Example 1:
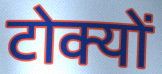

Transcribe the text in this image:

टोक्यों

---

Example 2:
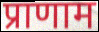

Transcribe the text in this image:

प्राणाम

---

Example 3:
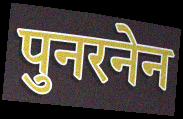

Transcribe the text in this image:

पुनरनेन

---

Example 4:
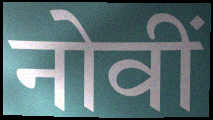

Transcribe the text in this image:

नोवीं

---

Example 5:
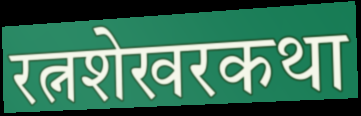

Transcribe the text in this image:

रत्नशेखरकथा